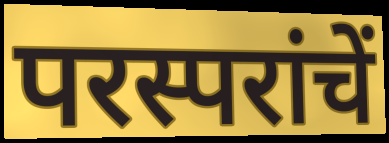
परस्परांचें